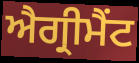
ਐਗ੍ਰੀਮੈਂਟ